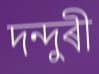
দন্দুৰী